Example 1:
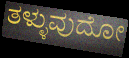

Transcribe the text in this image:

ತಳ್ಳುವುದೋ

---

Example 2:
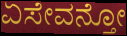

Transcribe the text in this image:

ಏಸೇವನ್ತೋ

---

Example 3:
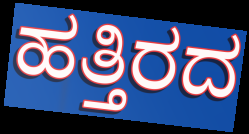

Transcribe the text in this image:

ಹತ್ತಿರದ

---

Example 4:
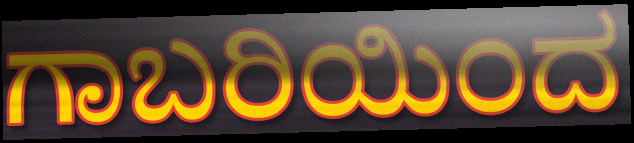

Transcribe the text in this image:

ಗಾಬರಿಯಿಂದ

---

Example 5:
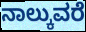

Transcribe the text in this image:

ನಾಲ್ಕುವರೆ